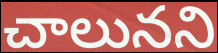
చాలునని